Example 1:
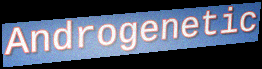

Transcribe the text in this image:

Androgenetic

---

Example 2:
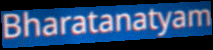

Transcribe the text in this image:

Bharatanatyam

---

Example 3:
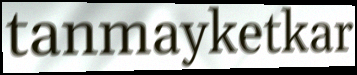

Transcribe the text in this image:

tanmayketkar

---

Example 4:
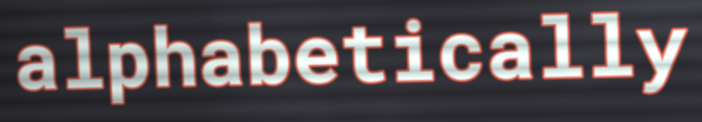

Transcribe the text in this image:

alphabetically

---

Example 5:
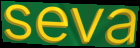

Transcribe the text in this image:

seva